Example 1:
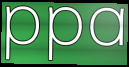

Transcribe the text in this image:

ppa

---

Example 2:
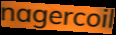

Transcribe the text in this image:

nagercoil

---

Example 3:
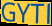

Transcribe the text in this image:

GYTI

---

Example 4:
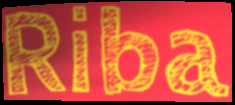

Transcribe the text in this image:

Riba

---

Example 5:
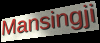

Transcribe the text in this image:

Mansingji